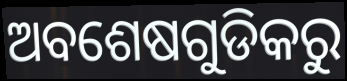
ଅବଶେଷଗୁଡିକରୁ